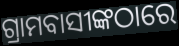
ଗ୍ରାମବାସୀଙ୍କଠାରେ